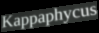
Kappaphycus